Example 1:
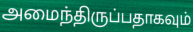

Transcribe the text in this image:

அமைந்திருப்பதாகவும்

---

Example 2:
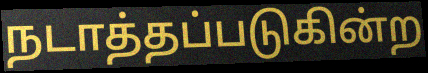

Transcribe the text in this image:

நடாத்தப்படுகின்ற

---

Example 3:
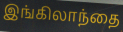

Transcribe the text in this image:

இங்கிலாந்தை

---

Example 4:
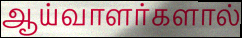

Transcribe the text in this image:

ஆய்வாளர்களால்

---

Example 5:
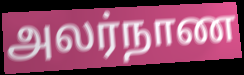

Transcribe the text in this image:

அலர்நாண